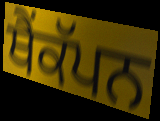
ਥੈਂਕੱਪਨ